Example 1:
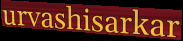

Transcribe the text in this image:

urvashisarkar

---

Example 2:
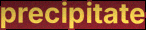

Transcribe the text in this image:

precipitate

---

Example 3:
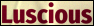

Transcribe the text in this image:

Luscious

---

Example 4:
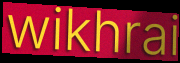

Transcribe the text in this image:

wikhrai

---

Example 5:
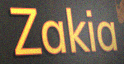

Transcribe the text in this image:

Zakia